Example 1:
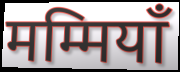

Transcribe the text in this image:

मम्मियाँ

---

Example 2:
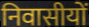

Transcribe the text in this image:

निवासीयों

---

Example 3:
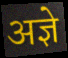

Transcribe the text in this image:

अज्ञे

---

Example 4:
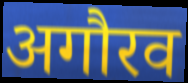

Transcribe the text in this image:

अगौरव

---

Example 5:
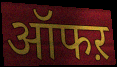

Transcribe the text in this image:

ऑफऱ